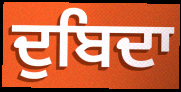
ਦੁਬਿਦਾ